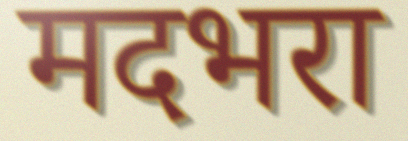
मदभरा